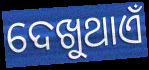
ଦେଖୁଥାଏଁ